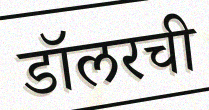
डॉलरची